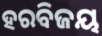
ହରବିଜୟ